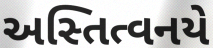
અસ્તિત્વનયે